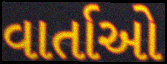
વાર્તાઓ